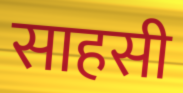
साहसी